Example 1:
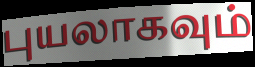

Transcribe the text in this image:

புயலாகவும்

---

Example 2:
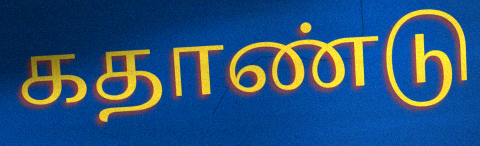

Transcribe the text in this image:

கதாண்டு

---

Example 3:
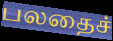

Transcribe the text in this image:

பலதைச்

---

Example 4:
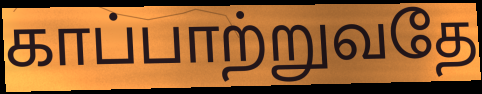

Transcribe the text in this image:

காப்பாற்றுவதே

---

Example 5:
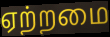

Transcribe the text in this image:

ஏற்றமை